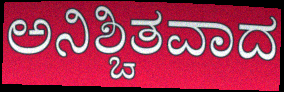
ಅನಿಶ್ಚಿತವಾದ